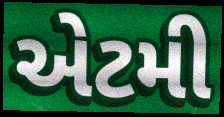
એટમી